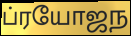
ப்ரயோஜந